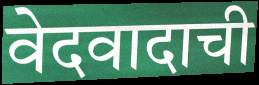
वेदवादाची